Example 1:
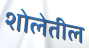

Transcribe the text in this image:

शोलेतील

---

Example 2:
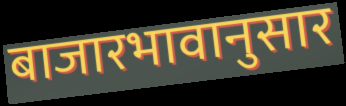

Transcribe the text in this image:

बाजारभावानुसार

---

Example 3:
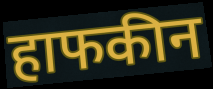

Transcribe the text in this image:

हाफकीन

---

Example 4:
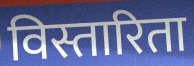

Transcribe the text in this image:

विस्तारिता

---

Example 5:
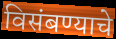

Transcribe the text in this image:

विसंबण्याचे